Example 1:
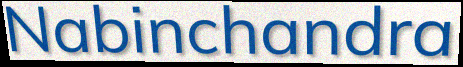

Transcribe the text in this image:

Nabinchandra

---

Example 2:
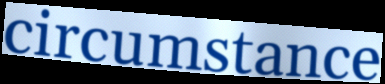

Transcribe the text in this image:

circumstance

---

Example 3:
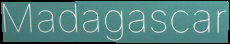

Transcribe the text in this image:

Madagascar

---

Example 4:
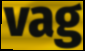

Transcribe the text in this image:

vag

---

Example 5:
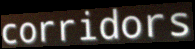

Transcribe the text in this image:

corridors